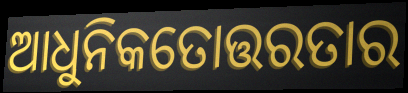
ଆଧୁନିକତୋତ୍ତରତାର